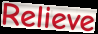
Relieve